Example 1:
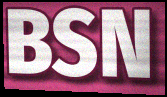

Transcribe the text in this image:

BSN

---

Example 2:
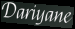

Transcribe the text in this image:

Dariyane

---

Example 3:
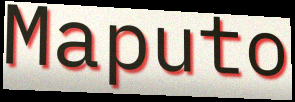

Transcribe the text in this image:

Maputo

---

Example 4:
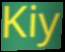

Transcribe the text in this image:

Kiy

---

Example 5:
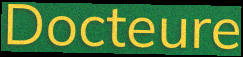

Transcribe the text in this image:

Docteure